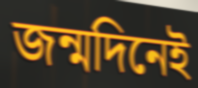
জন্মদিনেই